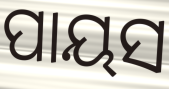
ପାୟସ